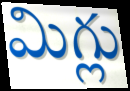
మిగ్లు